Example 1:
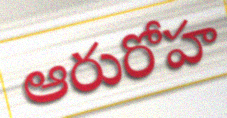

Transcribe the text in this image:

ఆరురోహ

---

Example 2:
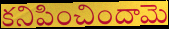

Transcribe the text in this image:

కనిపించిందామె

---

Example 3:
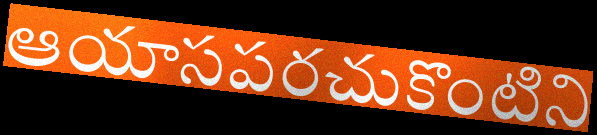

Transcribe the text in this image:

ఆయాసపరచుకొంటిని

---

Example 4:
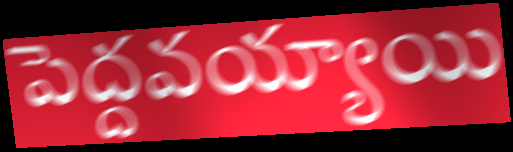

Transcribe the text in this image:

పెద్దవయ్యాయి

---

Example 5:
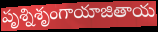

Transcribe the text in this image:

పృశ్నిశృంగాయాజితాయ